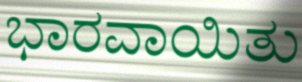
ಭಾರವಾಯಿತು